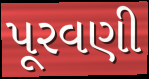
પૂરવણી